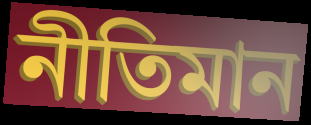
নীতিমান